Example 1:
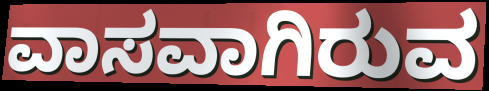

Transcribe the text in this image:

ವಾಸವಾಗಿರುವ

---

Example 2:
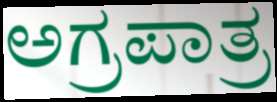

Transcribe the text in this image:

ಅಗ್ರಪಾತ್ರ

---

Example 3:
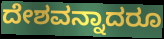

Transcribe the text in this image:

ದೇಶವನ್ನಾದರೂ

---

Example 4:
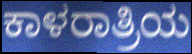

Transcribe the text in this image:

ಕಾಳರಾತ್ರಿಯ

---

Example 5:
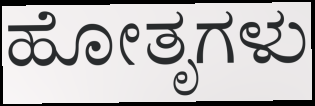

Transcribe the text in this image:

ಹೋತೃಗಳು